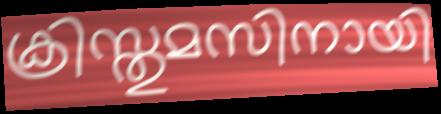
ക്രിസ്തുമസിനായി